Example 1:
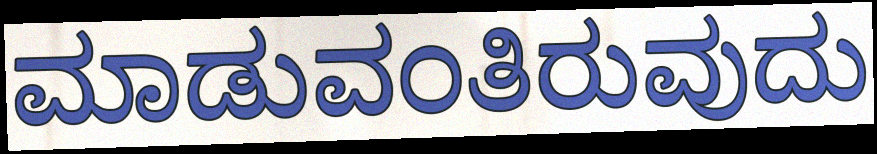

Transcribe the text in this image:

ಮಾಡುವಂತಿರುವುದು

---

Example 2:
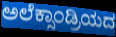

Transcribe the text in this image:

ಅಲೆಕ್ಸಾಂಡ್ರಿಯದ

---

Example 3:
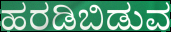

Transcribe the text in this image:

ಹರಡಿಬಿಡುವ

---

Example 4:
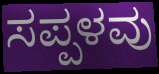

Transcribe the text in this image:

ಸಪ್ಪಳವು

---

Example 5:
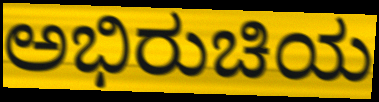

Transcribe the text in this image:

ಅಭಿರುಚಿಯ